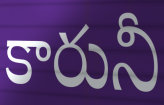
కారునీ